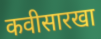
कवीसारखा